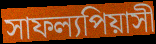
সাফল্যপিয়াসী